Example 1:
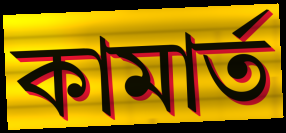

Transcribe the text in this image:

কামাৰ্ত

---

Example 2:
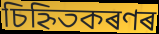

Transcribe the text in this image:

চিহ্নিতকৰণৰ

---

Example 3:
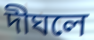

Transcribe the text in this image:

দীঘলে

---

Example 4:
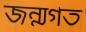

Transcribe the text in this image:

জন্মগত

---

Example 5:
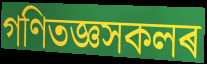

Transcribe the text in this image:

গণিতজ্ঞসকলৰ